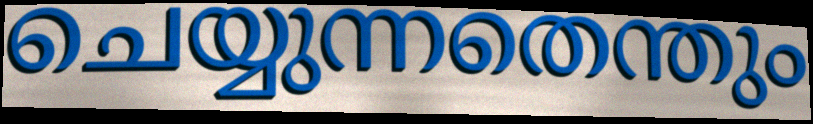
ചെയ്യുന്നതെന്തും